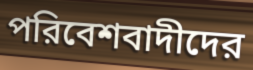
পরিবেশবাদীদের